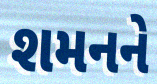
શમનને